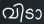
വിടാ